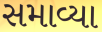
સમાવ્યા